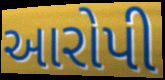
આરોપી